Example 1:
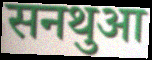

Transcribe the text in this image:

सनथुआ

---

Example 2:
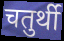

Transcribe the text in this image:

चतुर्थी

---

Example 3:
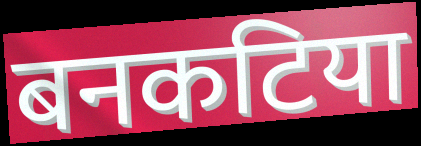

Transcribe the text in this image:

बनकटिया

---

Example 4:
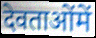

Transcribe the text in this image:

देवताओंमें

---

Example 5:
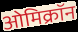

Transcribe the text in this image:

ओमिक्रॉन